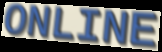
ONLINE